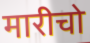
मारीचो